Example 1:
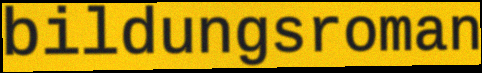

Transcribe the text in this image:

bildungsroman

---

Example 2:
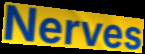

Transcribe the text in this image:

Nerves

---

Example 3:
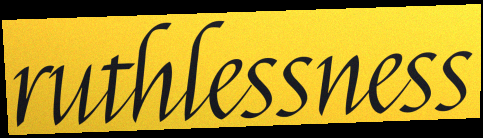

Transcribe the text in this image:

ruthlessness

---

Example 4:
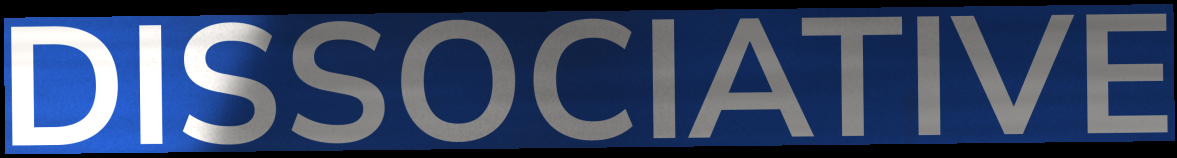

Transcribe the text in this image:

DISSOCIATIVE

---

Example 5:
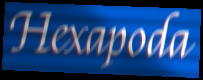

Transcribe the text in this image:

Hexapoda